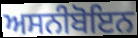
ਅਸਨੀਬੋਇਨ